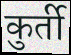
कुर्ती